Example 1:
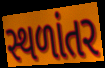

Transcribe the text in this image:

સ્થળાંતર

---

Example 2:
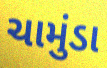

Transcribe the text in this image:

ચામુંડા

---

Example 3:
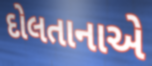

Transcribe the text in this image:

દોલતાનાએ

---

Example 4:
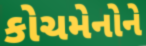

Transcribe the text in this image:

કોચમેનોને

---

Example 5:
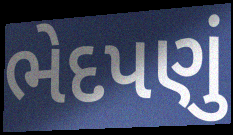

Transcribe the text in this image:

ભેદપણું